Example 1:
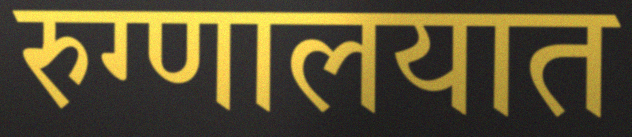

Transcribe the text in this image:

रुग्णालयात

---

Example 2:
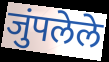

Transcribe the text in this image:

जुंपलेले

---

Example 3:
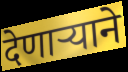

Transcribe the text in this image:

देणार्‍याने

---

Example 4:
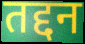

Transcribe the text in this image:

तद्दन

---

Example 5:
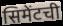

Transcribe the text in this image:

सिमेंटची